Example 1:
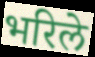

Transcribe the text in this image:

भरिले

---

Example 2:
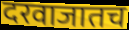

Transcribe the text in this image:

दरवाजातच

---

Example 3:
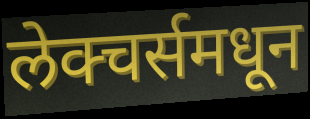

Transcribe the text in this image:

लेक्चर्समधून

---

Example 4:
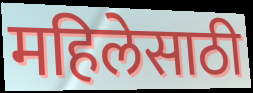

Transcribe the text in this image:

महिलेसाठी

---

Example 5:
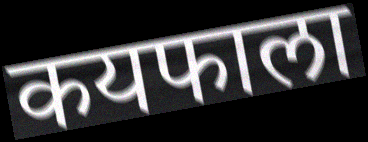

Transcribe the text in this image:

कयफाला